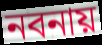
নবনায়